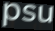
psu